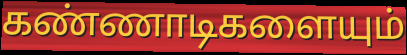
கண்ணாடிகளையும்